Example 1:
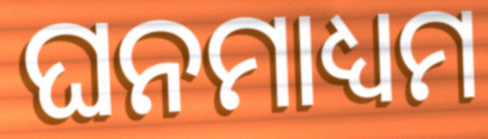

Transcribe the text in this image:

ଘନମାଧ୍ୟମ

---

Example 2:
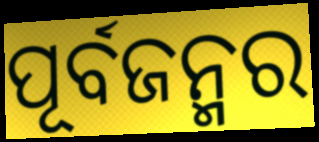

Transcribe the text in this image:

ପୂର୍ବଜନ୍ମର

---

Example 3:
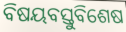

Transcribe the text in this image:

ବିଷୟବସ୍ତୁବିଶେଷ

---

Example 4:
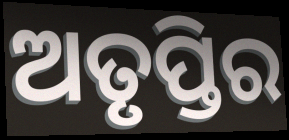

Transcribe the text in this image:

ଅତୃପ୍ତିର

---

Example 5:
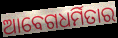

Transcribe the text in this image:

ଆବେଗଧର୍ମିତାର